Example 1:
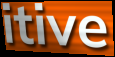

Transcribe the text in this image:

itive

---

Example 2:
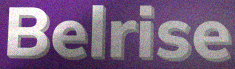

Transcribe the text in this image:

Belrise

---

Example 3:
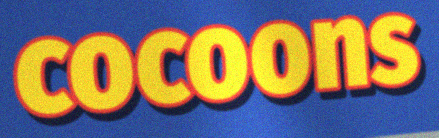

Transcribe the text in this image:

cocoons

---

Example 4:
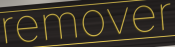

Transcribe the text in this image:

remover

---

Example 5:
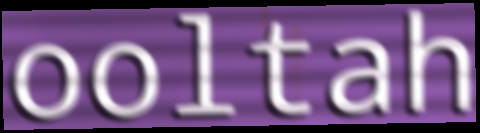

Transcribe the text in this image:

ooltah